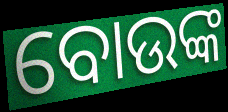
ବୋଉଙ୍କ